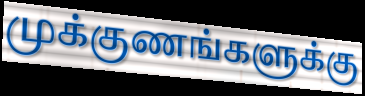
முக்குணங்களுக்கு